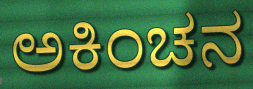
ಅಕಿಂಚನ